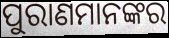
ପୁରାଣମାନଙ୍କର